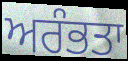
ਅਰੰਭਤਾ